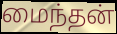
மைந்தன்